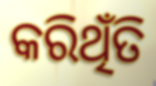
କରିଥିଁତି